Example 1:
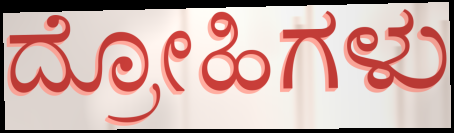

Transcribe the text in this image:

ದ್ರೋಹಿಗಳು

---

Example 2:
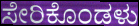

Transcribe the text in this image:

ಸೇರಿಕೊಂಡಳು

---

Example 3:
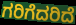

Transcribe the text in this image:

ಗರಿಗೆದರಿದೆ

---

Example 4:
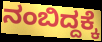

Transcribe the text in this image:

ನಂಬಿದ್ದಕ್ಕೆ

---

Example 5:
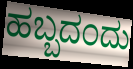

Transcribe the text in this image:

ಹಬ್ಬದಂದು